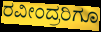
ರವೀಂದ್ರರಿಗೂ